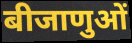
बीजाणुओं